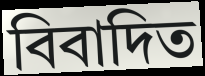
বিবাদিত